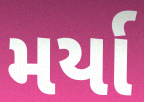
મર્યા